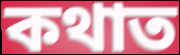
কথাত